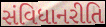
સંવિધાનરીતિ